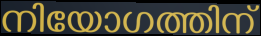
നിയോഗത്തിന്